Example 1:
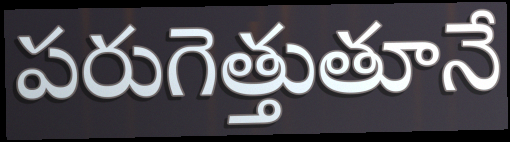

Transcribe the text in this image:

పరుగెత్తుతూనే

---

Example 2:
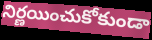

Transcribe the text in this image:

నిర్ణయించుకోకుండా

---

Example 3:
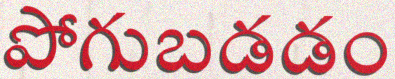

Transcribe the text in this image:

పోగుబడడం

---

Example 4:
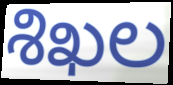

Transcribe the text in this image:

శిఖల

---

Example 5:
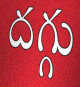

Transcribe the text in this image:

దగ్గు